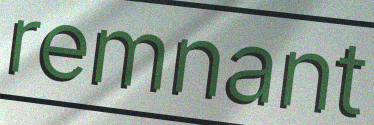
remnant